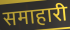
समाहारी